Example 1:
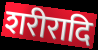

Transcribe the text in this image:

शरीरादि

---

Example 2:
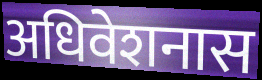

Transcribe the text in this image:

अधिवेशनास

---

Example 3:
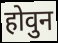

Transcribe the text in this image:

होवुन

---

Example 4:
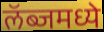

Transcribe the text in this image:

लॅब्जमध्ये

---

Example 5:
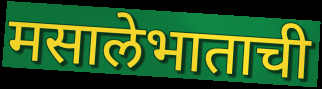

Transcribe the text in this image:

मसालेभाताची